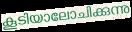
കൂടിയാലോചിക്കുന്നു